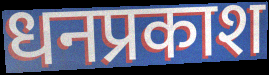
धनप्रकाश